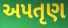
અપતૃણ